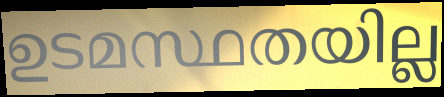
ഉടമസ്ഥതയില്ല